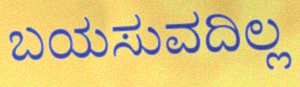
ಬಯಸುವದಿಲ್ಲ